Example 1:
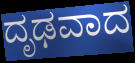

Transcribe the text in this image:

ದೃಢವಾದ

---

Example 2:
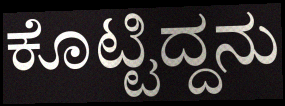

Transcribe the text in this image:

ಕೊಟ್ಟಿದ್ದನು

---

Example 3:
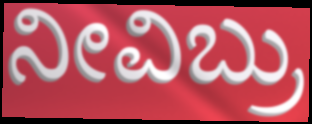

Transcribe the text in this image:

ನೀವಿಬ್ರು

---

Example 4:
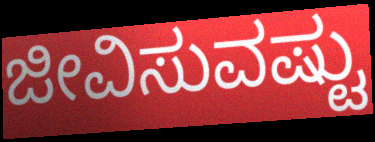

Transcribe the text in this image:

ಜೀವಿಸುವಷ್ಟು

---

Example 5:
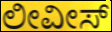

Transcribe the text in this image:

ಲೀವೀಸ್